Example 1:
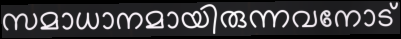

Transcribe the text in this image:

സമാധാനമായിരുന്നവനോട്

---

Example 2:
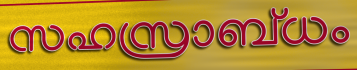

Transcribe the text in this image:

സഹസ്രാബ്ധം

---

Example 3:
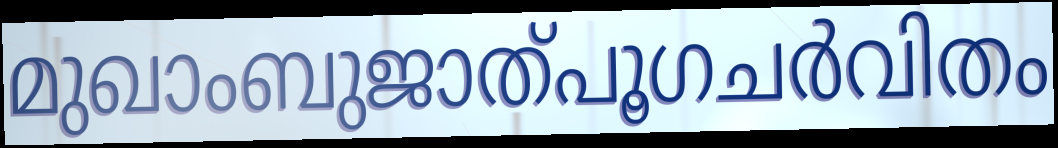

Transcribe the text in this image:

മുഖാംബുജാത്പൂഗചർവിതം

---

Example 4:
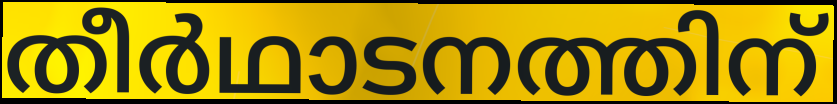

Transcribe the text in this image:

തീർഥാടനത്തിന്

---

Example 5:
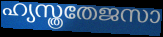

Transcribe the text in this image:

ഹ്യസ്ത്രതേജസാ